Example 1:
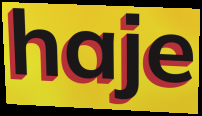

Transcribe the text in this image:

haje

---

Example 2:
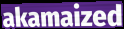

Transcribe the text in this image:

akamaized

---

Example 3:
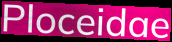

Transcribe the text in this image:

Ploceidae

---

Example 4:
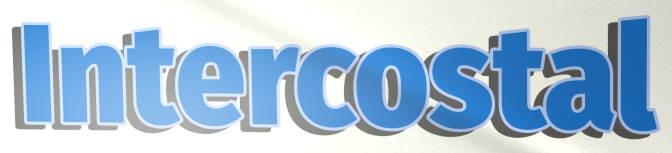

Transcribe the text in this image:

Intercostal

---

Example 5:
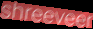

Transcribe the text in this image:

shreeveer